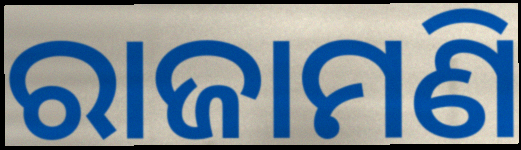
ରାଜାମଣି